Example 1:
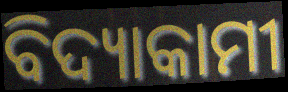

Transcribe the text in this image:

ବିଦ୍ୟାକାମୀ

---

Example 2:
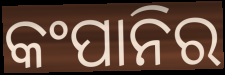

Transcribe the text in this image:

କଂପାନିର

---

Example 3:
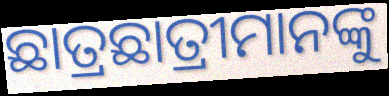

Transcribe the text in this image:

ଛାତ୍ରଛାତ୍ରୀମାନଙ୍କୁ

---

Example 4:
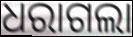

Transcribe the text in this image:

ଧରାଗଲା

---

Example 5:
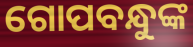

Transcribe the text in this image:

ଗୋପବନ୍ଧୁଙ୍କ